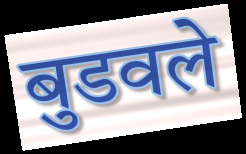
बुडवले